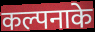
कल्पनाके